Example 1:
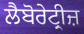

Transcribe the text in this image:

ਲੈਬੋਰੇਟ੍ਰੀਜ਼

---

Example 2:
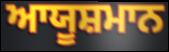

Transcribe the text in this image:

ਆਯੂਸ਼ਮਾਨ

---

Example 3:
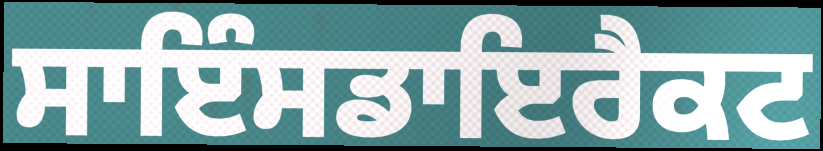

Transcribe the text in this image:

ਸਾਇੰਸਡਾਇਰੈਕਟ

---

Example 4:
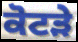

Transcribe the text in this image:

ਕੋਟੜੇ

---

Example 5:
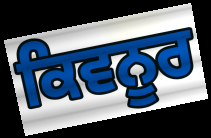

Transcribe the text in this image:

ਕਿਵਨੂਰ